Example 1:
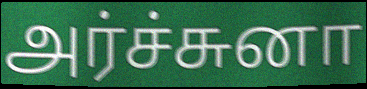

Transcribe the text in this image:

அர்ச்சுனா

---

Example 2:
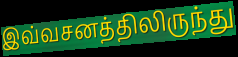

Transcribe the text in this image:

இவ்வசனத்திலிருந்து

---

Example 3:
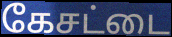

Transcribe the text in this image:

கேசட்டை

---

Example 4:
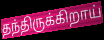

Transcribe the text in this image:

தந்திருக்கிறாய்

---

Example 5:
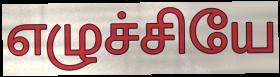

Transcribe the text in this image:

எழுச்சியே